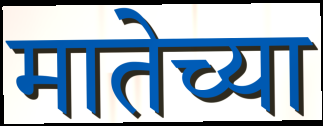
मातेच्या